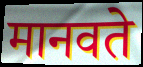
मानवते